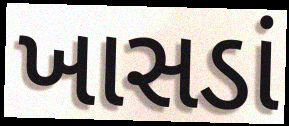
ખાસડાં